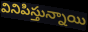
వినిపిస్తున్నాయి